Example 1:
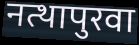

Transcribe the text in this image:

नत्थापुरवा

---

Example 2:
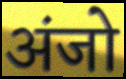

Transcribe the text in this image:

अंजो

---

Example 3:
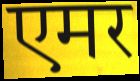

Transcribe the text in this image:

एमर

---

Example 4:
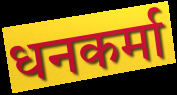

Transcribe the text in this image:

धनकर्मा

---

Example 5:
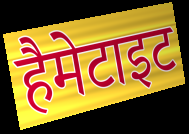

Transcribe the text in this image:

हैमेटाइट